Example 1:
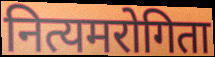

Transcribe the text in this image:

नित्यमरोगिता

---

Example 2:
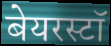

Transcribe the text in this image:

बेयरस्टॉ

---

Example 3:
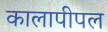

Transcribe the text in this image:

कालापीपल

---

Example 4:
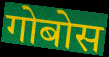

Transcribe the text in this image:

गोबोस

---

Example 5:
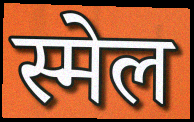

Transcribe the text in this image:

स्‍मेल